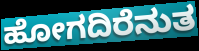
ಹೋಗದಿರೆನುತ